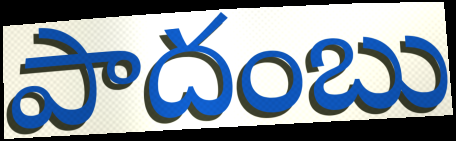
పాదంబు